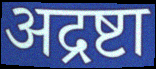
अद्रष्टा